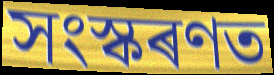
সংস্কৰণত